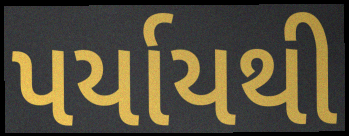
પર્યાયથી